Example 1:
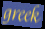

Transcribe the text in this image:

greek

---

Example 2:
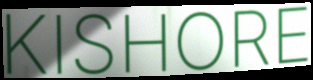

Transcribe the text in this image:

KISHORE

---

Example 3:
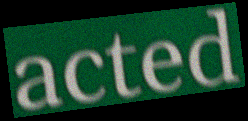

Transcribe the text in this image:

acted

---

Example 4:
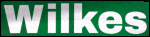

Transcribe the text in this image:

Wilkes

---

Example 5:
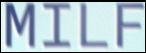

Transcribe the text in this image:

MILF